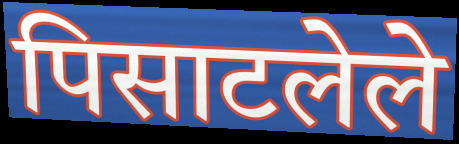
पिसाटलेले